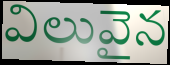
విలువైన